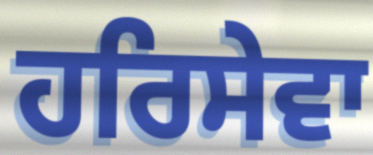
ਹਰਿਸੇਵਾ